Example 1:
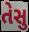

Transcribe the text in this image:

તેસુ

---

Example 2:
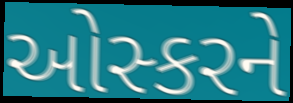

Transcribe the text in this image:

ઓસ્કરને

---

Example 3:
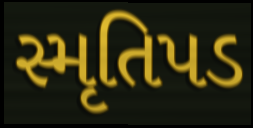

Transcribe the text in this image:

સ્મૃતિપડ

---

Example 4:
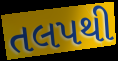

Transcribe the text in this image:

તલપથી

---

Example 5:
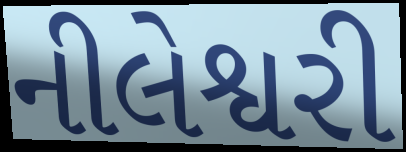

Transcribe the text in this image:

નીલેશ્વરી